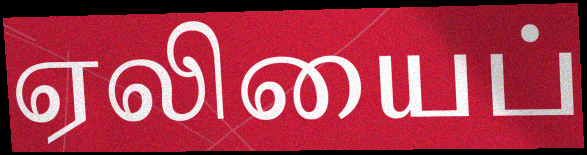
ஏலியைப்